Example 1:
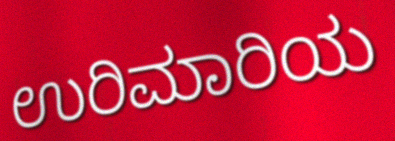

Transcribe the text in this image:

ಉರಿಮಾರಿಯ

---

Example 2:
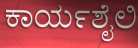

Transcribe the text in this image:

ಕಾರ್ಯಶೈಲಿ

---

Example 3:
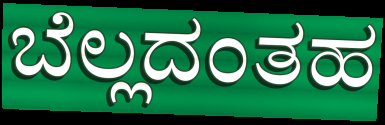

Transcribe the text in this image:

ಬೆಲ್ಲದಂತಹ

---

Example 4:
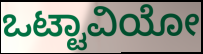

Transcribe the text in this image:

ಒಟ್ಟಾವಿಯೋ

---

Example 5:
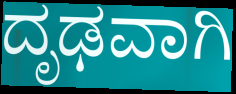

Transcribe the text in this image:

ದೃಢವಾಗಿ